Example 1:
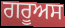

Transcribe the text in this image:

ਗਰੂਅਸ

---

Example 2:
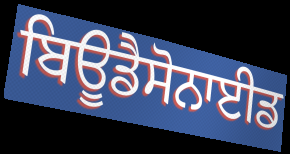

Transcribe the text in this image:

ਬਿਊਡੈਸੋਨਾਈਡ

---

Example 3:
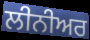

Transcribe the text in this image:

ਲੀਨੀਅਰ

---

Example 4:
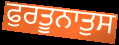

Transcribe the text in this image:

ਫੁਰਤੂਨਾਤੁਸ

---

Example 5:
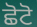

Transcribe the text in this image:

ਛੋਟੋ